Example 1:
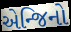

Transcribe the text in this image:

એન્જિનો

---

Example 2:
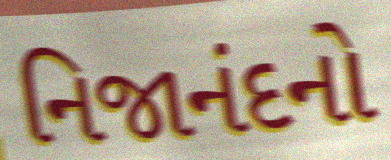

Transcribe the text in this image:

નિજાનંદનો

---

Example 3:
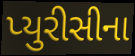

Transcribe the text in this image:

પ્યુરીસીના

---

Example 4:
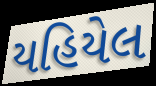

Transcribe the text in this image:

યહિયેલ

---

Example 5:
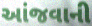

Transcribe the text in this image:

આંજવાની